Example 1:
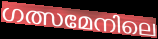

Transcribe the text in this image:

ഗത്സമേനിലെ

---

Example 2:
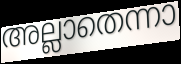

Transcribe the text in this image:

അല്ലാതെന്നാ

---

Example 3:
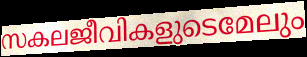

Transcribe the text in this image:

സകലജീവികളുടെമേലും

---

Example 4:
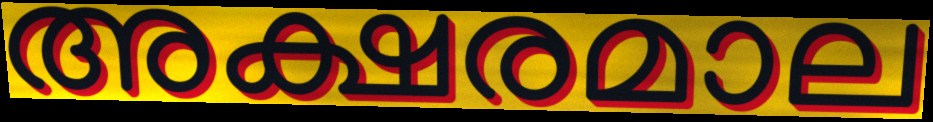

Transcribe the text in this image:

അക്ഷരമാല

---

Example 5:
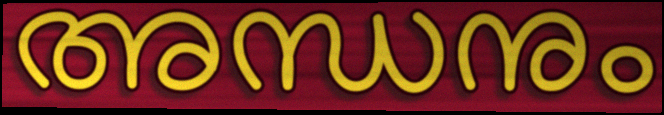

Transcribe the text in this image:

അന്ധനും